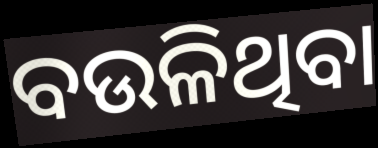
ବଉଳିଥିବା